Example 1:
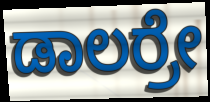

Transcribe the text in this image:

ಡಾಲರ್ರೇ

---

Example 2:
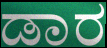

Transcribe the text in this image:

ಡಾರ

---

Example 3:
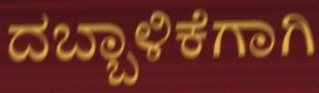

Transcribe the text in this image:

ದಬ್ಬಾಳಿಕೆಗಾಗಿ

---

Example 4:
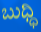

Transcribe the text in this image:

ಬುಧ್ಧಿ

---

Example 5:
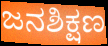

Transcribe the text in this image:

ಜನಶಿಕ್ಷಣ